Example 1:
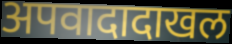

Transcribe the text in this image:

अपवादादाखल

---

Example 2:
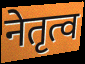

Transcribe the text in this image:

नेतृत्‍व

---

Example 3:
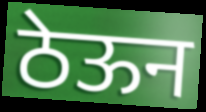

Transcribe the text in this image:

ठेऊन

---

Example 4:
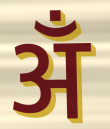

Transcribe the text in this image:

अँ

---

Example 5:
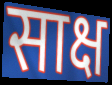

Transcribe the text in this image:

साक्ष